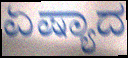
ಏಷ್ಯಾದ